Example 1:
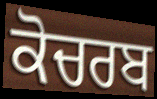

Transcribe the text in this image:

ਕੋਚਰਬ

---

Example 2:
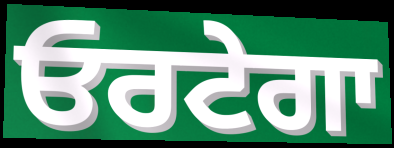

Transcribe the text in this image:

ਓਰਟੇਗਾ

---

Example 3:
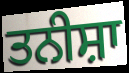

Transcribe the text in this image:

ਤਨੀਸ਼ਾ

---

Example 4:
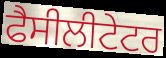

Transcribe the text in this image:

ਫੈਸੀਲੀਟੇਟਰ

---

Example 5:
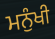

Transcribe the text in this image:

ਮਨੁੰਖੀ